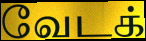
வேடக்